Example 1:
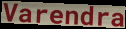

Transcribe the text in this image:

Varendra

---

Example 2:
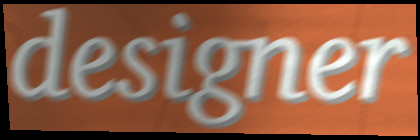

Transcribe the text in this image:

designer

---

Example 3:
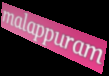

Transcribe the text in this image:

malappuram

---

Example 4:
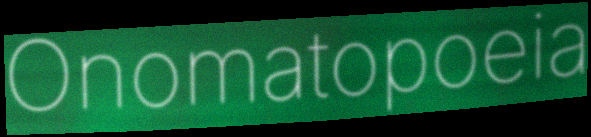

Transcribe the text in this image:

Onomatopoeia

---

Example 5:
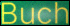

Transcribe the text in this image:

Buch